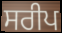
ਸਰੀਪ